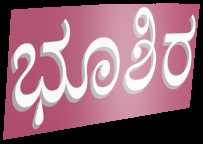
ಭೂಶಿರ